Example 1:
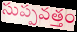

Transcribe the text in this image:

సుప్పవత్తం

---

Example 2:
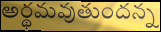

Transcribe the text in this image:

అర్థమవుతుందన్న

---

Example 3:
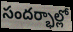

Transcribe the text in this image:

సందర్భాల్లో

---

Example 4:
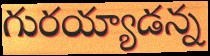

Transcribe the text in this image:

గురయ్యాడన్న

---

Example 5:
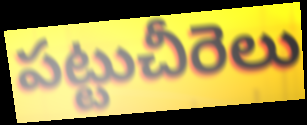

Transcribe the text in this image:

పట్టుచీరెలు